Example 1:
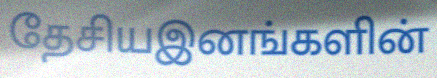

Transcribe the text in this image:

தேசியஇனங்களின்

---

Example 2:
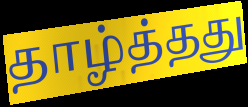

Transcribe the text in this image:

தாழ்த்தது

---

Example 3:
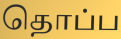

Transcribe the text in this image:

தொப்ப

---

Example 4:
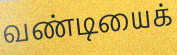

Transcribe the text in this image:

வண்டியைக்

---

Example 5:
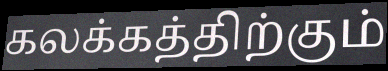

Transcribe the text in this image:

கலக்கத்திற்கும்